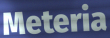
Meteria